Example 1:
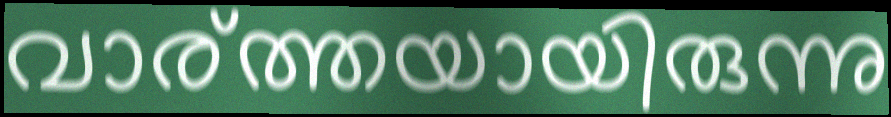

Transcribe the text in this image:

വാര്ത്തയായിരുന്നു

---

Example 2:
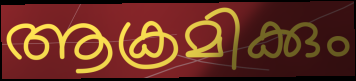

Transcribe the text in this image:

ആക്രമിക്കും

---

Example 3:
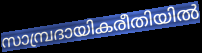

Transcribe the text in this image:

സാമ്പ്രദായികരീതിയിൽ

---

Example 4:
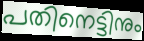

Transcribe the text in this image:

പതിനെട്ടിനും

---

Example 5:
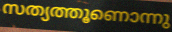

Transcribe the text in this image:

സത്യത്തൂണൊന്നു